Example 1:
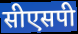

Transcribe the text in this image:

सीएसपी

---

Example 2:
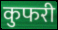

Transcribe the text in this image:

कुफरी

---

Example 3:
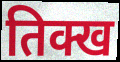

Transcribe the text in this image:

तिक्ख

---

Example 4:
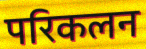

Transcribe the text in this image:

परिकलन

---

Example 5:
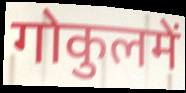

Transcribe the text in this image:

गोकुलमें